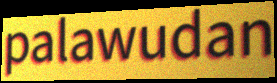
palawudan